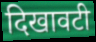
दिखावटी